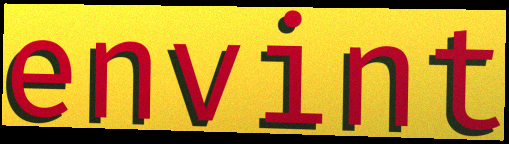
envint